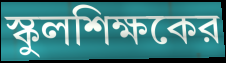
স্কুলশিক্ষকের